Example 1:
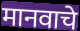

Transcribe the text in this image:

मानवाचे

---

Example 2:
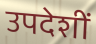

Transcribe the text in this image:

उपदेशीं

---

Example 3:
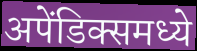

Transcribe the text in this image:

अपेंडिक्समध्ये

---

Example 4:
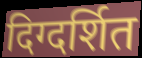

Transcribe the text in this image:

दिग्दर्शित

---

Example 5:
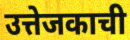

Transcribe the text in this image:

उत्तेजकाची